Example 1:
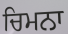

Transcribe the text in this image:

ਚਿਮਨਾ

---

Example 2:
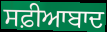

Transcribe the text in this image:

ਸਫ਼ੀਆਬਾਦ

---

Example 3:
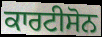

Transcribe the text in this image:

ਕਾਰਟੀਸੋਨ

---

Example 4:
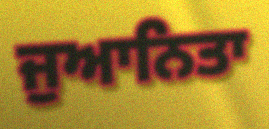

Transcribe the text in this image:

ਜੁਆਨਿਤਾ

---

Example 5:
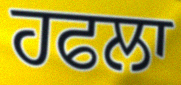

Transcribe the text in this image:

ਹਫਲਾ